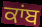
ਕਾਂਬ